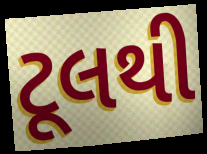
ટૂલથી